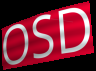
OSD